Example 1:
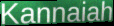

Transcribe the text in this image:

Kannaiah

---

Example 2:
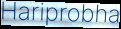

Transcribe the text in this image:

Hariprobha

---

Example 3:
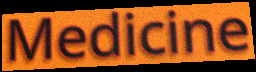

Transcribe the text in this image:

Medicine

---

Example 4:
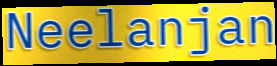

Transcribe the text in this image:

Neelanjan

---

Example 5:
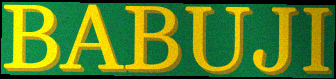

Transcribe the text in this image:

BABUJI